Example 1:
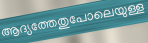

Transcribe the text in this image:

ആദ്യത്തേതുപോലെയുള്ള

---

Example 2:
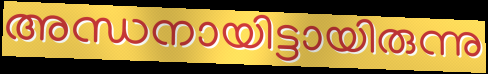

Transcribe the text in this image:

അന്ധനായിട്ടായിരുന്നു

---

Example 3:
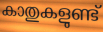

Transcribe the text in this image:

കാതുകളുണ്ട്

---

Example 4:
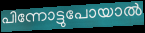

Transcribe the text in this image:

പിന്നോട്ടുപോയാൽ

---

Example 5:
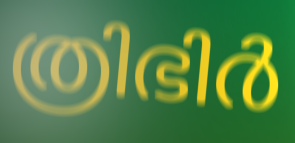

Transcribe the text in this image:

ത്രിഭിർ